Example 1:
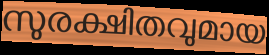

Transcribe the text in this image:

സുരക്ഷിതവുമായ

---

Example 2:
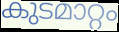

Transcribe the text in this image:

കുടമാറ്റം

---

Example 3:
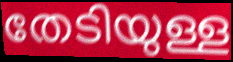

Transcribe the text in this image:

തേടിയുള്ള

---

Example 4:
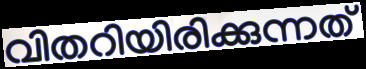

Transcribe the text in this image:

വിതറിയിരിക്കുന്നത്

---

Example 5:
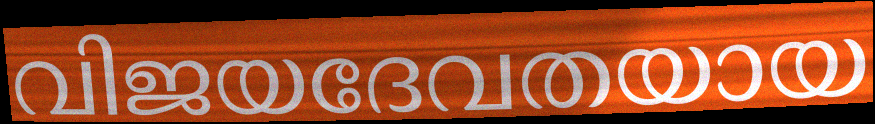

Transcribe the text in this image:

വിജയദേവതയായ